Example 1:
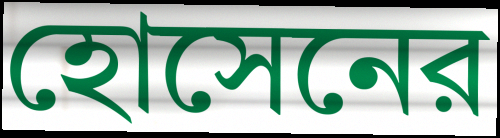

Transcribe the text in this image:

হোসেনের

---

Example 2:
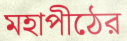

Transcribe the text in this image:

মহাপীঠের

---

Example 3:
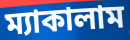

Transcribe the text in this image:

ম্যাকালাম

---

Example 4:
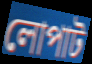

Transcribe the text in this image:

লোপাট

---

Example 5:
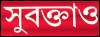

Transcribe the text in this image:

সুবক্তাও